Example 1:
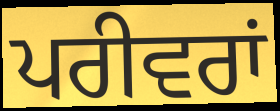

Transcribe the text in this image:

ਪਰੀਵਰਾਂ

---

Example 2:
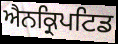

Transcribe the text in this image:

ਐਨਕ੍ਰਿਪਟਿਡ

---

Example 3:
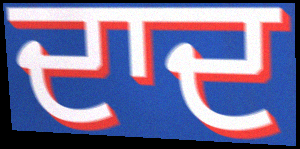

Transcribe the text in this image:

ਦਾਦ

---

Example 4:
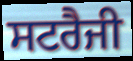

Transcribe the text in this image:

ਸਟਰੈਜੀ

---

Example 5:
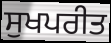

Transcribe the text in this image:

ਸੁਖਪਰੀਤ